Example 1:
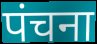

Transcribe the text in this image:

पंचना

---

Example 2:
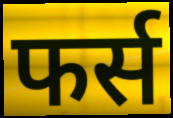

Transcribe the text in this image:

फर्स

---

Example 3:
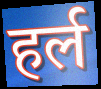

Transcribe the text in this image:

हर्ल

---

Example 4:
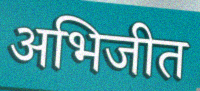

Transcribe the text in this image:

अभिजीत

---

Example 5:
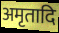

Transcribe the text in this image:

अमृतादि